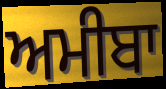
ਅਮੀਬਾ